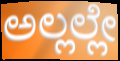
ಅಲ್ಲಲ್ಲೇ